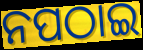
ନପଠାଇ